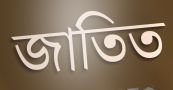
জাতিত